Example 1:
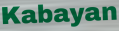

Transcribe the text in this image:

Kabayan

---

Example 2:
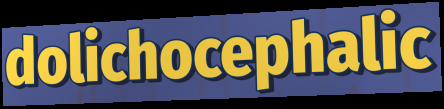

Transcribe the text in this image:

dolichocephalic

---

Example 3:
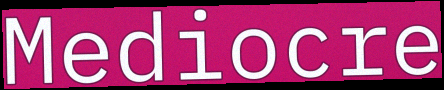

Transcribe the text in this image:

Mediocre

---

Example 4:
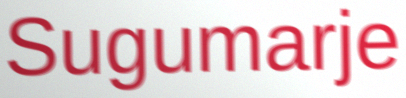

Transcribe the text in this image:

Sugumarje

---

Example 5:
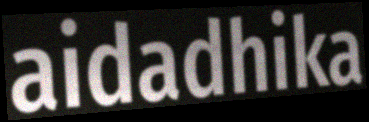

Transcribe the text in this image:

aidadhika